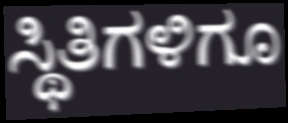
ಸ್ಥಿತಿಗಳಿಗೂ